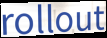
rollout